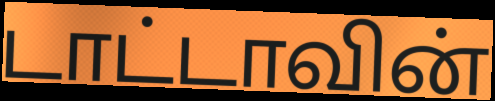
டாட்டாவின்